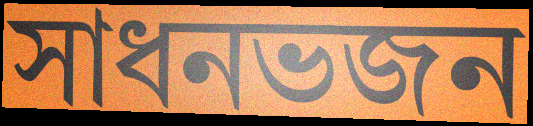
সাধনভজন